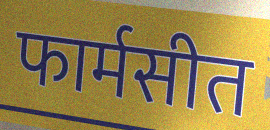
फार्मसीत